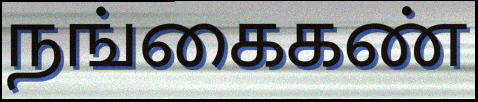
நங்கைகண்